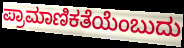
ಪ್ರಾಮಾಣಿಕತೆಯೆಂಬುದು